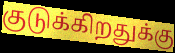
குடுக்கிறதுக்கு